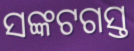
ସଙ୍କଟଗସ୍ତ